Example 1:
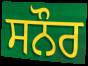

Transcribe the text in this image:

ਸਨੌਰ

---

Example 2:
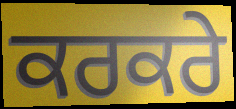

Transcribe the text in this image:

ਕਰਕਰੇ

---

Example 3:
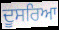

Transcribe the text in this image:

ਦੂਸਰਿਆ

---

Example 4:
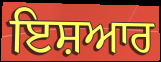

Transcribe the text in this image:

ਇਸ਼ਆਰ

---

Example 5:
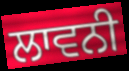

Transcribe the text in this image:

ਲਾਵਨੀ